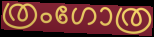
ത്രംഗോത്ര